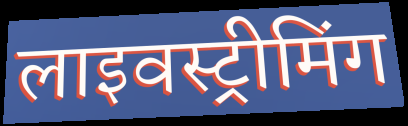
लाइवस्ट्रीमिंग